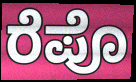
ರೆಪೊ